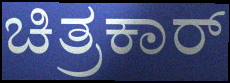
ಚಿತ್ರಕಾರ್